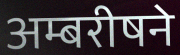
अम्बरीषने